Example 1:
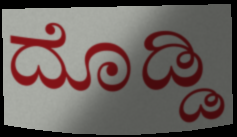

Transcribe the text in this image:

ದೊಡ್ಡಿ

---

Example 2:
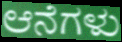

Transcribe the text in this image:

ಆನೆಗಳು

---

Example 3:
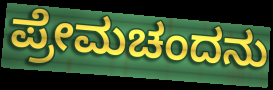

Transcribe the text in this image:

ಪ್ರೇಮಚಂದನು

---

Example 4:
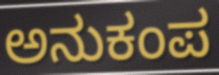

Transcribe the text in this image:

ಅನುಕಂಪ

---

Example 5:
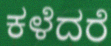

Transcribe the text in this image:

ಕಳೆದರೆ